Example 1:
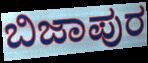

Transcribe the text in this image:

ಬಿಜಾಪುರ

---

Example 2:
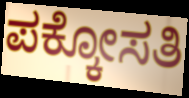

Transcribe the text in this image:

ಪಕ್ಕೋಸತಿ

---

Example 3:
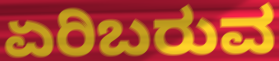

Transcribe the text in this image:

ಏರಿಬರುವ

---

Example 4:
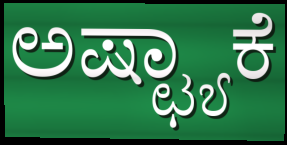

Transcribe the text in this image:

ಅಷ್ಟ್ಯಾಕೆ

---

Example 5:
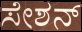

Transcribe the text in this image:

ಸೇಶನ್